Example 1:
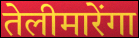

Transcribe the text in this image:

तेलीमारेंगा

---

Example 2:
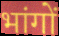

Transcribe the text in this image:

भांगों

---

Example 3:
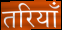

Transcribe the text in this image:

तरियाँ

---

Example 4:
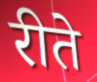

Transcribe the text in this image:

रीते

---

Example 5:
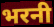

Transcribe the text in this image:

भरनी